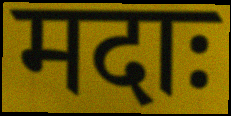
मदाः